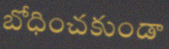
బోధించకుండా